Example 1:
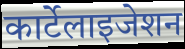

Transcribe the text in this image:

कार्टेलाइजेशन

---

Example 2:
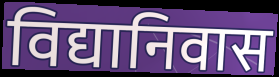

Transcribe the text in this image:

विद्यानिवास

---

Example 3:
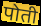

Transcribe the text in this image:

पोती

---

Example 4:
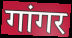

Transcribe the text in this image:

गांगर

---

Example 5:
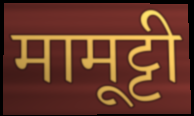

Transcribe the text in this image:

मामूट्टी